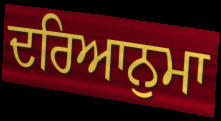
ਦਰਿਆਨੁਮਾ